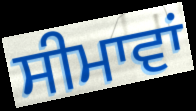
ਸੀਮਾਵਾਂ